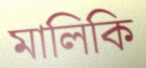
মালিকি